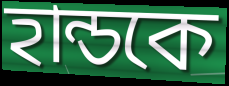
হান্ডকে